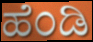
ಹೆಂಡಿ